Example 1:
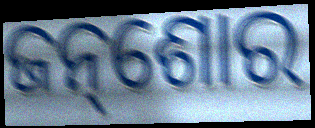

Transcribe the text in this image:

ଜନ୍‌ଶୋର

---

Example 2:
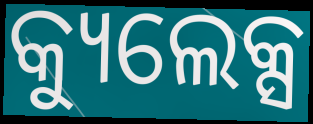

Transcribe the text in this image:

କ୍ୟୁଲେକ୍ସ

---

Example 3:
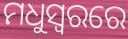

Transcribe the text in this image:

ମଧୁସ୍ୱରରେ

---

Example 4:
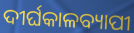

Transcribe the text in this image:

ଦୀର୍ଘକାଳବ୍ୟାପୀ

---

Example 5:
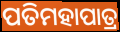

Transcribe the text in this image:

ପତିମହାପାତ୍ର